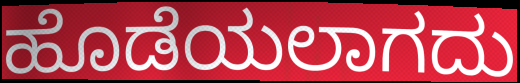
ಹೊಡೆಯಲಾಗದು